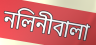
নলিনীবালা